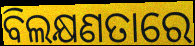
ବିଲକ୍ଷଣତାରେ